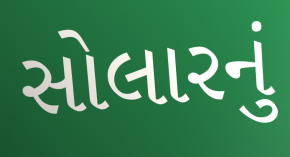
સોલારનું